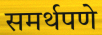
समर्थपणे